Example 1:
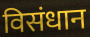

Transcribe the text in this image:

विसंधान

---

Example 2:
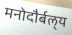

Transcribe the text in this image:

मनोदौर्बल्य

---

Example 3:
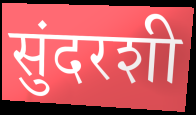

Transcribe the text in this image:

सुंदरशी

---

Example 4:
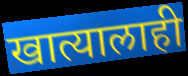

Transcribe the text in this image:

खात्यालाही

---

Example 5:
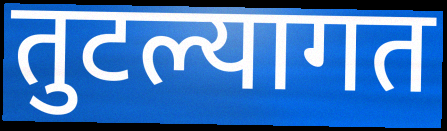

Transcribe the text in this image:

तुटल्यागत